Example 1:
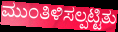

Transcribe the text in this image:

ಮುಂತಿಳಿಸಲ್ಪಟ್ಟಿತು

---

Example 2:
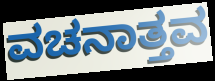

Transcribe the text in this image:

ವಚನಾತ್ತವ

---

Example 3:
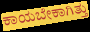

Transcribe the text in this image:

ಕಾಯಬೇಕಾಗಿತ್ತು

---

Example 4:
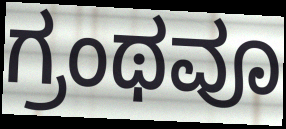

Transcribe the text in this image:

ಗ್ರಂಥವೂ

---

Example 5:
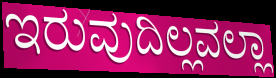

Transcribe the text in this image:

ಇರುವುದಿಲ್ಲವಲ್ಲಾ